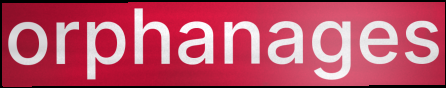
orphanages